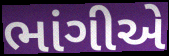
ભાંગીએ